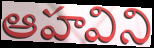
ఆహవిని